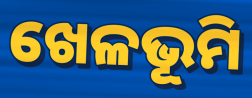
ଖେଳଭୂମି